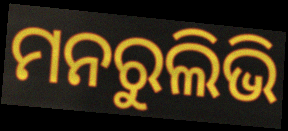
ମନରୁଲିଭି